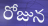
రోజున